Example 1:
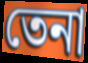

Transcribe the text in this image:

তেনা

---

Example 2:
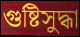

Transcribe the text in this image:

গুষ্টিসুদ্ধা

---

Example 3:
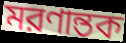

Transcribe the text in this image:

মরণান্তক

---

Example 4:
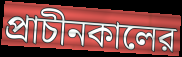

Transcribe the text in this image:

প্রাচীনকালের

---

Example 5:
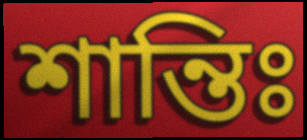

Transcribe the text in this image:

শান্তিঃ